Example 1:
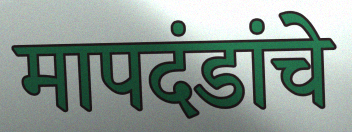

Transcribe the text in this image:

मापदंडांचे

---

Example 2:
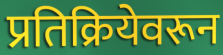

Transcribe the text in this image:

प्रतिक्रियेवरून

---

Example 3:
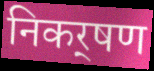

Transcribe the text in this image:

निकर्षण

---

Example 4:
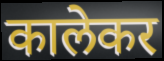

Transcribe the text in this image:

कालेकर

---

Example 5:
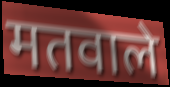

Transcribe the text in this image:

मतवाले